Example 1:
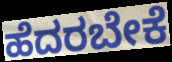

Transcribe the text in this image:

ಹೆದರಬೇಕೆ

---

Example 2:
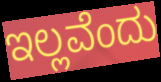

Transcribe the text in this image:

ಇಲ್ಲವೆಂದು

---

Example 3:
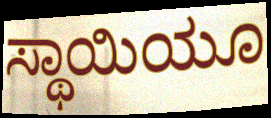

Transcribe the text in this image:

ಸ್ಥಾಯಿಯೂ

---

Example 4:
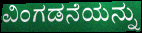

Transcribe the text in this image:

ವಿಂಗಡನೆಯನ್ನು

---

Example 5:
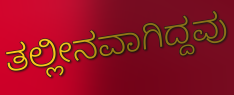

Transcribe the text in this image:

ತಲ್ಲೀನವಾಗಿದ್ದವು